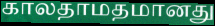
காலதாமதமானது